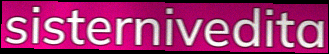
sisternivedita